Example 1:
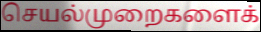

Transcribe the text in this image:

செயல்முறைகளைக்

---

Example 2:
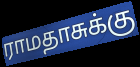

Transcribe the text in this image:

ராமதாசுக்கு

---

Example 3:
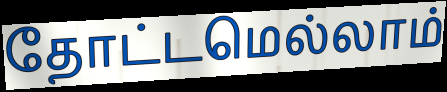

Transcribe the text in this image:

தோட்டமெல்லாம்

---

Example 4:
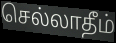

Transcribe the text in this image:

செல்லாதீம்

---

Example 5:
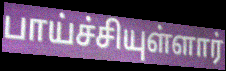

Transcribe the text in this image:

பாய்ச்சியுள்ளார்